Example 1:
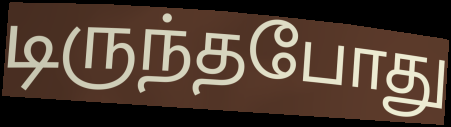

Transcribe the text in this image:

டிருந்தபோது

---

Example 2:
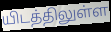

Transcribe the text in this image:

யிடத்திலுள்ள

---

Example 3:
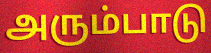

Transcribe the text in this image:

அரும்பாடு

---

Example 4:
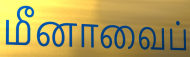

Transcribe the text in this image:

மீனாவைப்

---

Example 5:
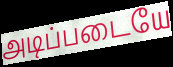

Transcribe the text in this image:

அடிப்படையே